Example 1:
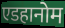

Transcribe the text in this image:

एडहानोम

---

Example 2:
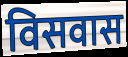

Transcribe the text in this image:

विसवास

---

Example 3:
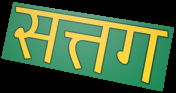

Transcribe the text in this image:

सत्तग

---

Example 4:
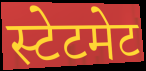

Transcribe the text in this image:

स्टेटमेट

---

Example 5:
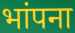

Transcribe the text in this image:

भांपना